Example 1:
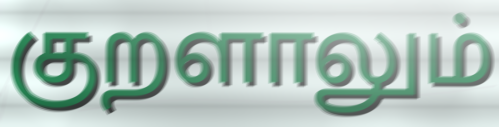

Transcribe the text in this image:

குறளாலும்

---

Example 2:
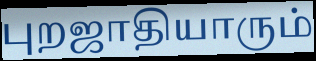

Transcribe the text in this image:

புறஜாதியாரும்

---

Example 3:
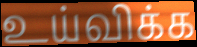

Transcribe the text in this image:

உய்விக்க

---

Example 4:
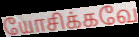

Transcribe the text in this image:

யோசிக்கவே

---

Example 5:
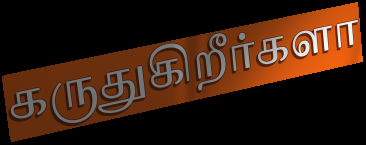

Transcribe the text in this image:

கருதுகிறீர்களா